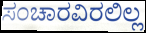
ಸಂಚಾರವಿರಲಿಲ್ಲ